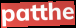
patthe